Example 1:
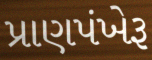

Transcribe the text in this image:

પ્રાણપંખેરૂ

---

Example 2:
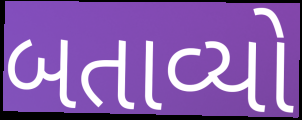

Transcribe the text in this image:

બતાવ્યો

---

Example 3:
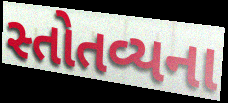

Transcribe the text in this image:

સ્તોતવ્યના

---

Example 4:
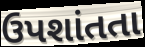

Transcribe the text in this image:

ઉપશાંતતા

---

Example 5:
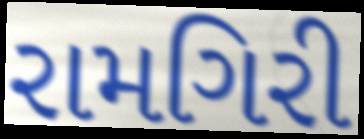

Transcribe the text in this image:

રામગિરી